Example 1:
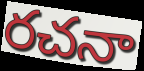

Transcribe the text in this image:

రచనా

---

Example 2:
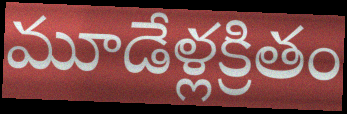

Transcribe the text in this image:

మూడేళ్లక్రితం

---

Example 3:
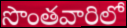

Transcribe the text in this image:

సొంతవారిలో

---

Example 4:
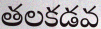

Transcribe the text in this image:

తలకడవ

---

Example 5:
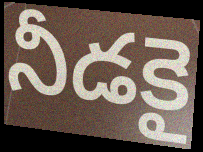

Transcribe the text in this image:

నీడకై